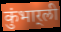
कुंभार्ली